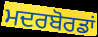
ਮਦਰਬੋਰਡਾਂ